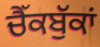
ਚੈੱਕਬੁੱਕਾਂ